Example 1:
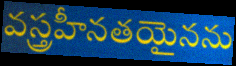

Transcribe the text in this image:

వస్త్రహీనతయైనను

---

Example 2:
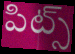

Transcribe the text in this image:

పిట్స్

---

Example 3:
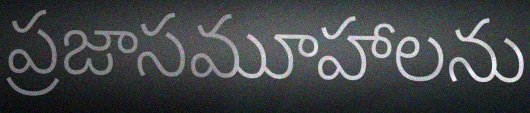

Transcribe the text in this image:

ప్రజాసమూహాలను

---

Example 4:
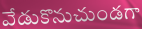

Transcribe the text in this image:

వేడుకొనుచుండగా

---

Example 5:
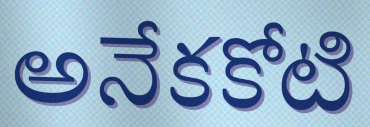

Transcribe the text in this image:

అనేకకోటి